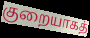
குறையாகத்